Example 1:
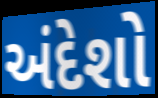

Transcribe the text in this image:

અંદેશો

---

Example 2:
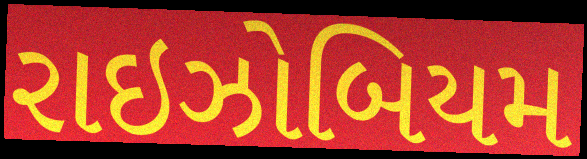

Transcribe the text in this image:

રાઇઝોબિયમ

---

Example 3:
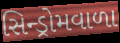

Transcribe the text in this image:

સિન્ડ્રોમવાળા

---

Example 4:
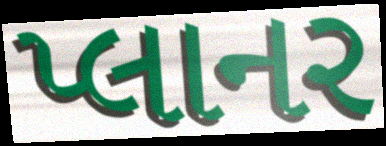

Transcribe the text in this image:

પ્લાનર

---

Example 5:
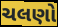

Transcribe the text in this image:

ચલણો